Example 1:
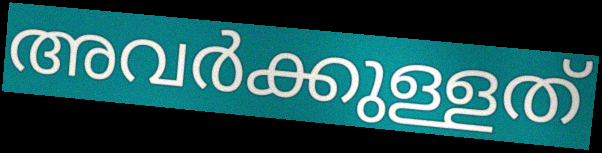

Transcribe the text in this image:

അവർക്കുള്ളത്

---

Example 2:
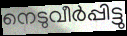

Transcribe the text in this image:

നെടുവീർപ്പിട്ടു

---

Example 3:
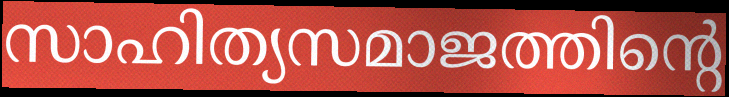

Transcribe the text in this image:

സാഹിത്യസമാജത്തിന്റെ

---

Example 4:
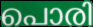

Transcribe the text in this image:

പൊരി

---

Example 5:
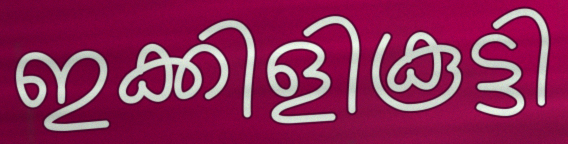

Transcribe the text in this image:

ഇക്കിളികൂട്ടി